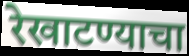
रेखाटण्याचा